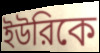
ইউরিকে